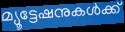
മ്യൂട്ടേഷനുകൾക്ക്